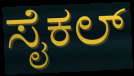
ಸೈಕಲ್